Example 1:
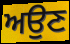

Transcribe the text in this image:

ਅਉਣ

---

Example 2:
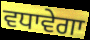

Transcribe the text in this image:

ਵਧਾਵੇਗਾ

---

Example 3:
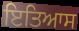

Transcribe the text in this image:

ਇਤਿਆਸ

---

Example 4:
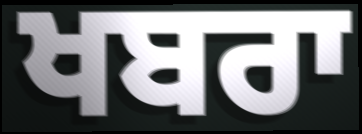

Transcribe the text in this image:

ਖਬਰਾ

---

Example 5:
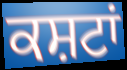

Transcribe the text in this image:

ਕਸ਼ਟਾਂ